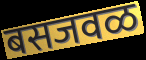
बसजवळ